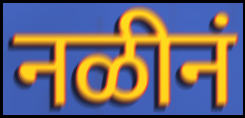
नळीनं